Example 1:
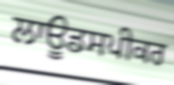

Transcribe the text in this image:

ਲਾਊਡਸਪੀਕਰ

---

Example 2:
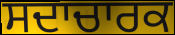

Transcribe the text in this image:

ਸਦਾਚਾਰਕ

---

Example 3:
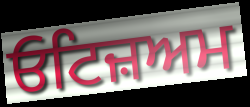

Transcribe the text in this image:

ਓਟਿਜ਼ਅਮ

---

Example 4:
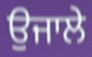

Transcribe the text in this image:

ਉਜਾਲੇ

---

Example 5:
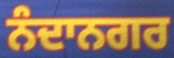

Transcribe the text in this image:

ਨੰਦਾਨਗਰ